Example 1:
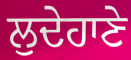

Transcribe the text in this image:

ਲੁਦੇਹਾਣੇ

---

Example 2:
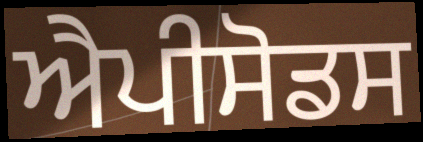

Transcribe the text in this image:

ਐਪੀਸੋਡਸ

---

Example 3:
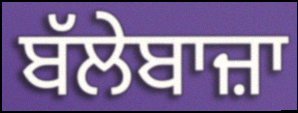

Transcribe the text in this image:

ਬੱਲੇਬਾਜ਼ਾ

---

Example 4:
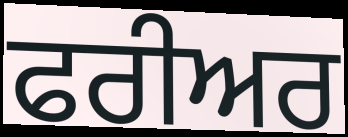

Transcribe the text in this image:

ਫਰੀਅਰ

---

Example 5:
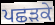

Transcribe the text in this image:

ਪਛੜਕੇ